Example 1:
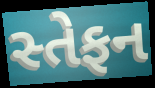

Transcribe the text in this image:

સ્તેફન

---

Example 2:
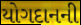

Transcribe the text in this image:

યોગદાનની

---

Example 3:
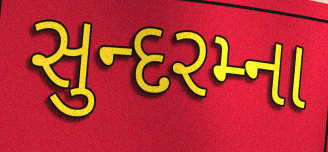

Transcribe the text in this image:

સુન્દરમ્ના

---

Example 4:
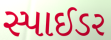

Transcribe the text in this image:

સ્પાઈડર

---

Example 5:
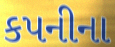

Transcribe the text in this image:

કપનીના